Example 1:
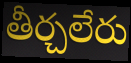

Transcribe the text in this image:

తీర్చలేరు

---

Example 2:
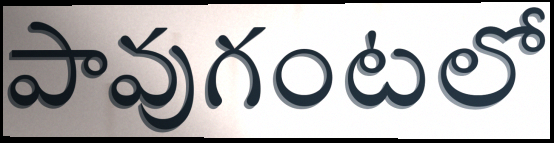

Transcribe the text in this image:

పావుగంటలో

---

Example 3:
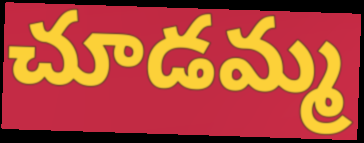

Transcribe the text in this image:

చూడమ్మ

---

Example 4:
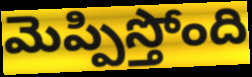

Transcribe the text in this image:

మెప్పిస్తోంది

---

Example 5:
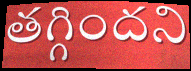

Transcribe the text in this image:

తగ్గిందని